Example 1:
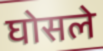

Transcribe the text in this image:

घोसले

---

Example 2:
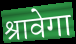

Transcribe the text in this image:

श्रावेगा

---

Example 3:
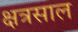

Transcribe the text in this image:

क्षत्रसाल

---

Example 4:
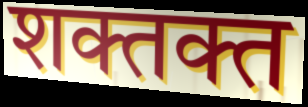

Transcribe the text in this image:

शक्तक्त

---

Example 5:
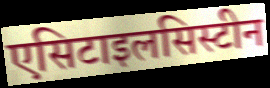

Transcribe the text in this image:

एसिटाइलसिस्टीन